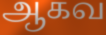
ஆகவ